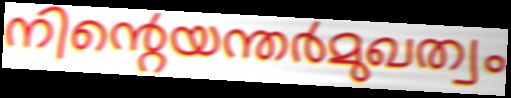
നിന്റെയന്തർമുഖത്വം